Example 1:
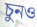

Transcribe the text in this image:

চুনও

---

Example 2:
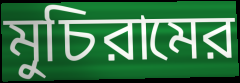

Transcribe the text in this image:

মুচিরামের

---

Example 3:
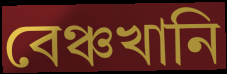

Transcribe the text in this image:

বেঞ্চখানি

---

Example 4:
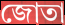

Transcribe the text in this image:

জোতা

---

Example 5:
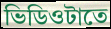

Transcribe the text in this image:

ভিডিওটাতে